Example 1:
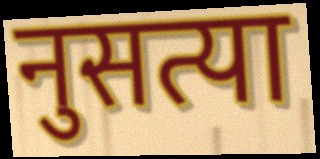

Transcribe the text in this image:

नुसत्या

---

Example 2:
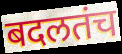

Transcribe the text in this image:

बदलतंच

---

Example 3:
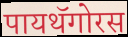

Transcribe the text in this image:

पायथॅगोरस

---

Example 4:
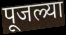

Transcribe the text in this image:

पूजल्या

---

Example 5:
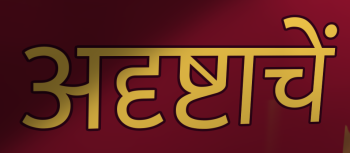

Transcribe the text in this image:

अदृष्टाचें